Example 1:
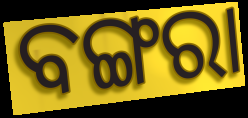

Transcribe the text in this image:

ବଙ୍ଗରା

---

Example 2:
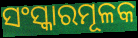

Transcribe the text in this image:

ସଂସ୍କାରମୂଳକ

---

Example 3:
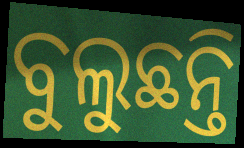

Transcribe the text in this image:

ବୁଲୁଛନ୍ତି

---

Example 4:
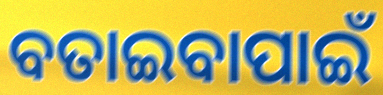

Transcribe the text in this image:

ବତାଇବାପାଇଁ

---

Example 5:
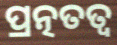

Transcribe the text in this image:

ପ୍ରତ୍ନତତ୍ୱ